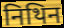
निथिन